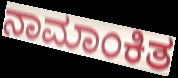
ನಾಮಾಂಕಿತ